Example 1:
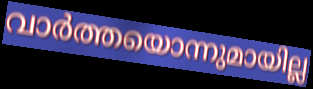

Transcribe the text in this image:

വാർത്തയൊന്നുമായില്ല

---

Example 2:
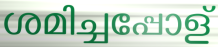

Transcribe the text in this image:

ശമിച്ചപ്പോള്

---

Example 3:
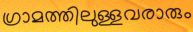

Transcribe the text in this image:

ഗ്രാമത്തിലുള്ളവരാരും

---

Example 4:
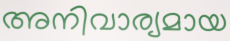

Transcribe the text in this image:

അനിവാര്യമായ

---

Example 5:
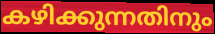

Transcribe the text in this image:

കഴിക്കുന്നതിനും